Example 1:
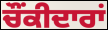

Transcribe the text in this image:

ਚੌਂਕੀਦਾਰਾਂ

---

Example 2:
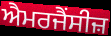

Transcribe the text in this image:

ਐਮਰਜੈਂਸੀਜ਼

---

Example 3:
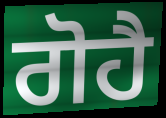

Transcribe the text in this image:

ਗੋਹੈ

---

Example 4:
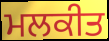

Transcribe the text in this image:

ਮਲਕੀਤ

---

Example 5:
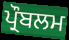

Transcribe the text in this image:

ਪ੍ਰੌਬਲਮ